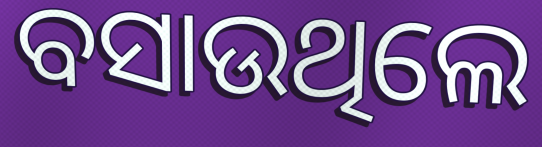
ବସାଉଥିଲେ